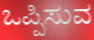
ಒಪ್ಪಿಸುವ